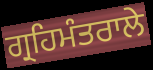
ਗ੍ਰਹਿਮੰਤਰਾਲੇ